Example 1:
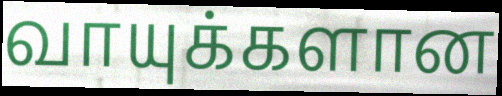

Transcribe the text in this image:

வாயுக்களான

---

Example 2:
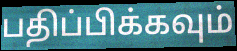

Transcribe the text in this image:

பதிப்பிக்கவும்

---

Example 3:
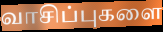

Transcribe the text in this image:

வாசிப்புகளை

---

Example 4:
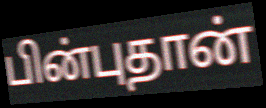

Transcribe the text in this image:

பின்புதான்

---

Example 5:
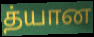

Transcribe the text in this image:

த்யான